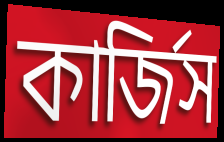
কার্জিস